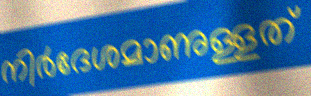
നിർദേശമാണുള്ളത്